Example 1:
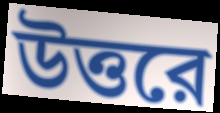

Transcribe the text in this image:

উত্তরে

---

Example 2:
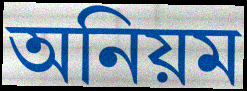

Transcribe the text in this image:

অনিয়ম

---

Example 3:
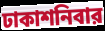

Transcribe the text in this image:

ঢাকাশনিবার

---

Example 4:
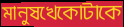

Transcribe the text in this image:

মানুষখেকোটাকে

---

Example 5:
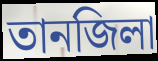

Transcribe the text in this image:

তানজিলা